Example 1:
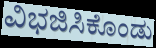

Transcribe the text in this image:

ವಿಭಜಿಸಿಕೊಂಡು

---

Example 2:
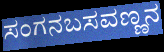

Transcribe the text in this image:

ಸಂಗನಬಸವಣ್ಣನ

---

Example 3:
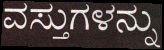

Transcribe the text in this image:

ವಸ್ತುಗಳನ್ನು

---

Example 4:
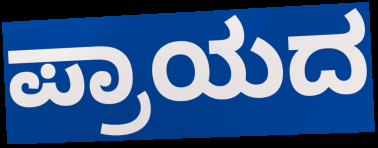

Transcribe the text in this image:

ಪ್ರಾಯದ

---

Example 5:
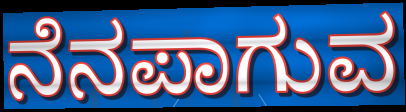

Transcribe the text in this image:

ನೆನಪಾಗುವ